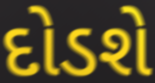
દોડશે